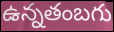
ఉన్నతంబగు